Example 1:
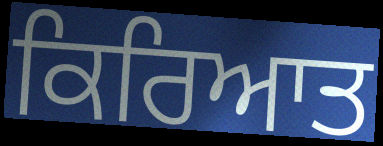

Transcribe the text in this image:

ਕਿਰਿਆਤ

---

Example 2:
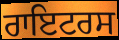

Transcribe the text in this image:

ਰਾਇਟਰਸ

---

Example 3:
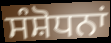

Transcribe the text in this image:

ਸੰਸ਼ੋਧਨਾਂ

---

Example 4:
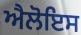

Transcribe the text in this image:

ਐਲੋਇਸ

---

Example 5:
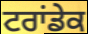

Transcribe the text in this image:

ਟਰਾਂਡੇਕ